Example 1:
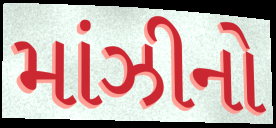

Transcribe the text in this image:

માંઝીનો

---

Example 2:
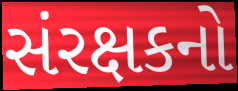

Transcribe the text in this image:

સંરક્ષકનો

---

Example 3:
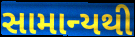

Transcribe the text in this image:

સામાન્યથી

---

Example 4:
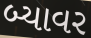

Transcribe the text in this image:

બ્યાવર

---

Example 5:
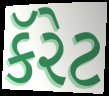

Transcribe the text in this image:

કૅરેટ